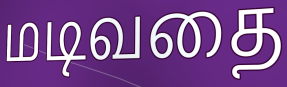
மடிவதை